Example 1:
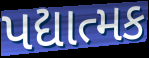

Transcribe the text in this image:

પદ્યાત્મક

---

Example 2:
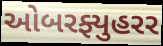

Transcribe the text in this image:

ઓબરફ્યુહરર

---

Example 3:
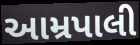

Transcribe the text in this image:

આમ્રપાલી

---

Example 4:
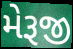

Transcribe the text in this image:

મેરૂજી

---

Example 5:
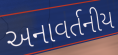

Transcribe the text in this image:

અનાવર્તનીય